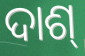
ଦାଶ୍